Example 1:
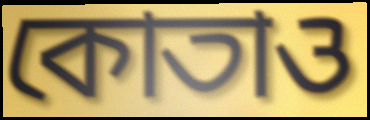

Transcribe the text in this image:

কোতাও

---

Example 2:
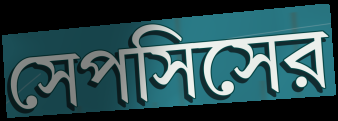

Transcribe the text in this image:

সেপসিসের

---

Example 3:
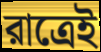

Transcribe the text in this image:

রাত্রেই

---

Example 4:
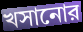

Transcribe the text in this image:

খসানোর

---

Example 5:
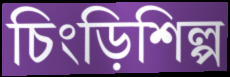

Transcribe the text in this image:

চিংড়িশিল্প